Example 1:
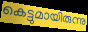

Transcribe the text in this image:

കെട്ടുമായിരുന്നു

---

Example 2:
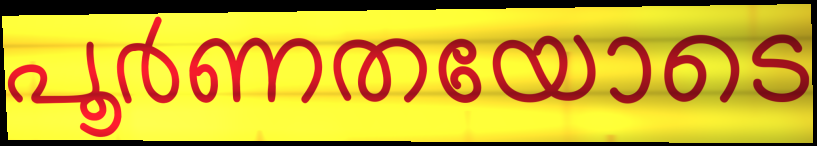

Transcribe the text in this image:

പൂർണതയോടെ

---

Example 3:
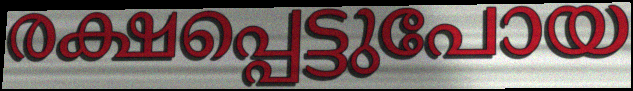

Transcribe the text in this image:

രക്ഷപ്പെട്ടുപോയ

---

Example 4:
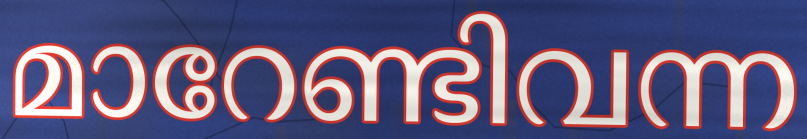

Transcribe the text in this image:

മാറേണ്ടിവന്ന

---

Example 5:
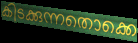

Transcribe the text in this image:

കിടക്കുന്നതൊക്കെ